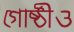
গোষ্ঠীও